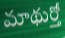
మాథుర్తో